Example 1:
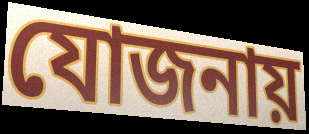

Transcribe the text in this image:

যোজনায়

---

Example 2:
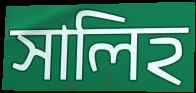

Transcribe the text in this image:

সালিহ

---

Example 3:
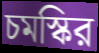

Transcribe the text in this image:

চমস্কির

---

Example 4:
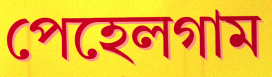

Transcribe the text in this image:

পেহেলগাম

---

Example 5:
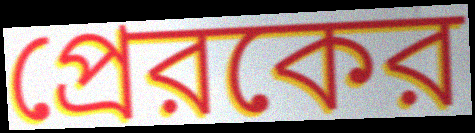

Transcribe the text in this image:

প্রেরকের